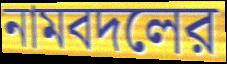
নামবদলের